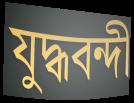
যুদ্ধবন্দী